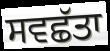
ਸਵਛੱਤਾ